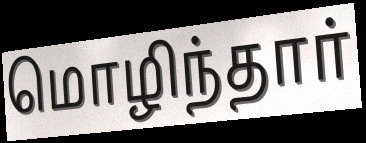
மொழிந்தார்